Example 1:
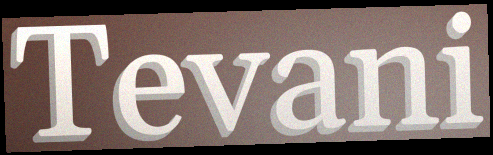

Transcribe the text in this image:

Tevani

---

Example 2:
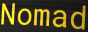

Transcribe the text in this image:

Nomad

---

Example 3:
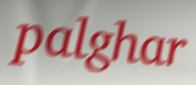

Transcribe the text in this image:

palghar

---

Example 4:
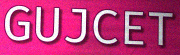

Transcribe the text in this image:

GUJCET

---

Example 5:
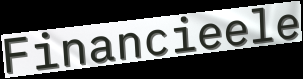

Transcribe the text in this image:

Financieele